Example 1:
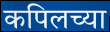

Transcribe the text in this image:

कपिलच्या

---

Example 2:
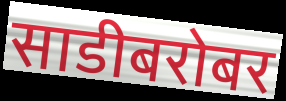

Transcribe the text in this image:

साडीबरोबर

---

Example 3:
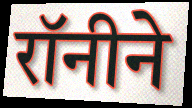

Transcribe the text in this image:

रॉनीने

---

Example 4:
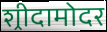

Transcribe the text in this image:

श्रीदामोदर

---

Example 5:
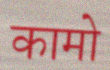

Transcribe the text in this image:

कामो